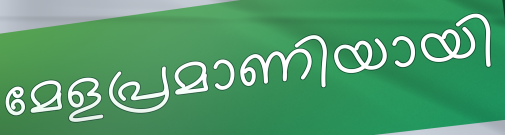
മേളപ്രമാണിയായി